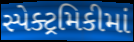
સ્પેક્ટ્રમિકીમાં